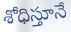
శోధిస్తూనే